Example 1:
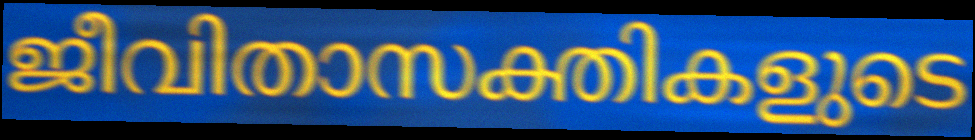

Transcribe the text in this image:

ജീവിതാസക്തികളുടെ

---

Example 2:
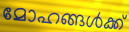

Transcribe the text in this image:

മോഹങ്ങൾക്ക്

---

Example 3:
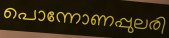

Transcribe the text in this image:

പൊന്നോണപ്പുലരി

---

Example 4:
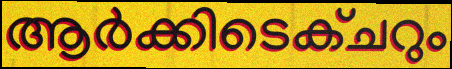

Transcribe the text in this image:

ആർക്കിടെക്ചറും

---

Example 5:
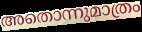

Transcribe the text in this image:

അതൊന്നുമാത്രം